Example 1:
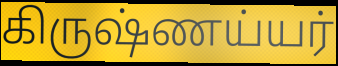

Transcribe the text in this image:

கிருஷ்ணய்யர்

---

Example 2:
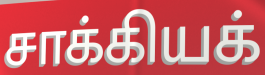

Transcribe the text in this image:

சாக்கியக்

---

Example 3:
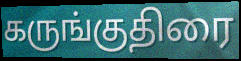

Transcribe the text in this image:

கருங்குதிரை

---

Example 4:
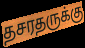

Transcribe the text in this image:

தசரதருக்கு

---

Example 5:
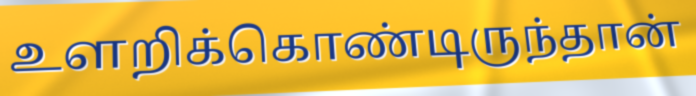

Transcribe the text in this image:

உளறிக்கொண்டிருந்தான்